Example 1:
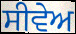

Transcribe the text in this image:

ਸੀਵੇਅ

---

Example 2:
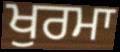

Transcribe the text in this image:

ਖੁਰਮਾ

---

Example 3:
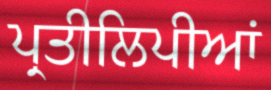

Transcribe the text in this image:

ਪ੍ਰਤੀਲਿਪੀਆਂ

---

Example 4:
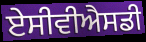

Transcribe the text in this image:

ਏਸੀਵੀਐਸਡੀ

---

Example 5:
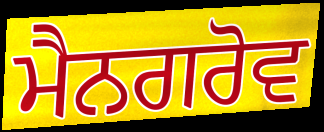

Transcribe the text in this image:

ਮੈਨਗਰੋਵ